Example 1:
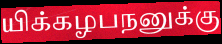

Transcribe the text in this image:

யிக்கழபநனுக்கு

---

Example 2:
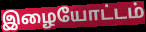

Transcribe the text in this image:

இழையோட்டம்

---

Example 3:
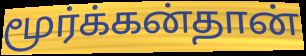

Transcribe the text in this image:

மூர்க்கன்தான்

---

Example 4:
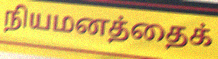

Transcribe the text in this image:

நியமனத்தைக்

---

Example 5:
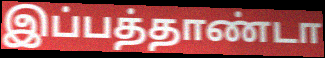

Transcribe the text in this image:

இப்பத்தாண்டா